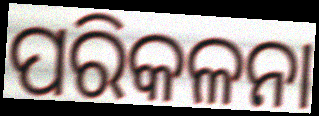
ପରିକଳନା